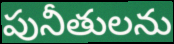
పునీతులను